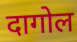
दागोल